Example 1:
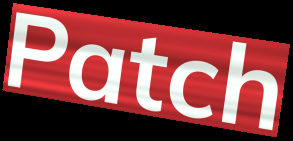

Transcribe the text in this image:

Patch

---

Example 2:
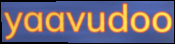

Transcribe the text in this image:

yaavudoo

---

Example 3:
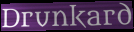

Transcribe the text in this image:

Drunkard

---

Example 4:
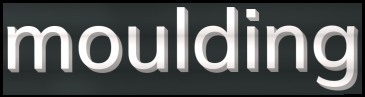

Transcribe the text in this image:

moulding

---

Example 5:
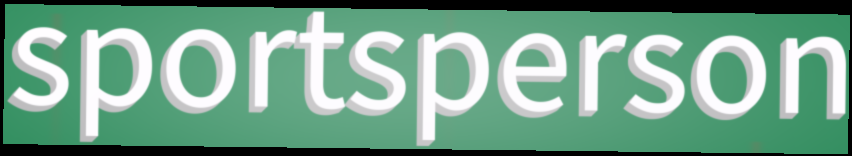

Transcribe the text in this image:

sportsperson